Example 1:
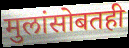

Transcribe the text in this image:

मुलांसोबतही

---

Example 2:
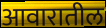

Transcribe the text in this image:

आवारातील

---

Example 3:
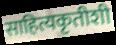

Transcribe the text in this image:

साहित्यकृतीशी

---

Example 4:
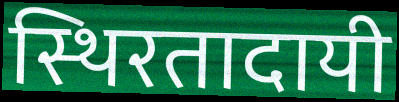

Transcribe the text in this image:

स्थिरतादायी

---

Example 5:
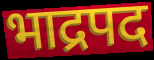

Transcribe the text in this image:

भाद्रपद